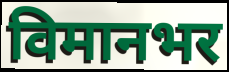
विमानभर